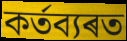
কৰ্তব্যৰত